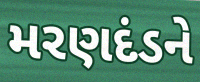
મરણદંડને